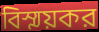
বিস্ময়কর